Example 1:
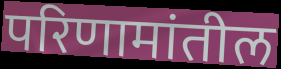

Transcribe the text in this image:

परिणामांतील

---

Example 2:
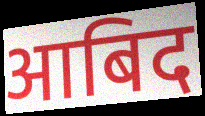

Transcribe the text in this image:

आबिद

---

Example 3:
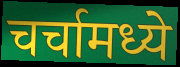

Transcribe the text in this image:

चर्चामध्ये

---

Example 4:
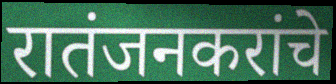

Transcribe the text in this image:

रातंजनकरांचे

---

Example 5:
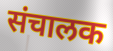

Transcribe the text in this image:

संचालक